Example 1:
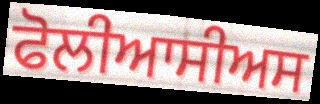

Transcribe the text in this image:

ਫੋਲੀਆਸੀਅਸ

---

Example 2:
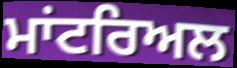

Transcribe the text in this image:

ਮਾਂਟਰਿਅਲ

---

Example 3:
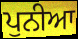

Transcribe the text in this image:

ਪੁਨੀਆ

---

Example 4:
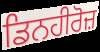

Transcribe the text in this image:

ਡਿਨਹੀਰੋਜ਼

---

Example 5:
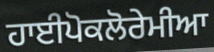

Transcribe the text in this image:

ਹਾਈਪੋਕਲੋਰੇਮੀਆ